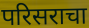
परिसराचा